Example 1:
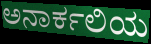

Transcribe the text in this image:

ಅನಾರ್ಕಲಿಯ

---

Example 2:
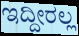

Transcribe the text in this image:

ಇದ್ದೀರಲ್ಲ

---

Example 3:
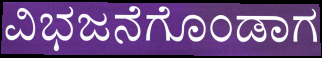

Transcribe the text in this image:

ವಿಭಜನೆಗೊಂಡಾಗ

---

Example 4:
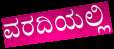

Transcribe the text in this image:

ವರದಿಯಲ್ಲಿ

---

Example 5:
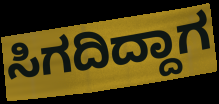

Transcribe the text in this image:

ಸಿಗದಿದ್ದಾಗ